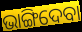
ଭାଙ୍ଗିଦେବା